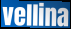
vellina